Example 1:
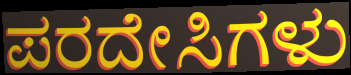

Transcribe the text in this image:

ಪರದೇಸಿಗಳು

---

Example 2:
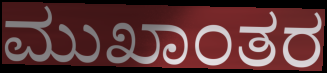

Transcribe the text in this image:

ಮುಖಾಂತರ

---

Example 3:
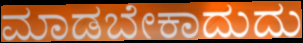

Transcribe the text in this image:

ಮಾಡಬೇಕಾದುದು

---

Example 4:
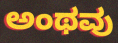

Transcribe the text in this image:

ಅಂಥವು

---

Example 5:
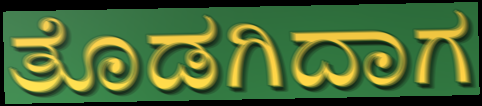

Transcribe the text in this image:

ತೊಡಗಿದಾಗ